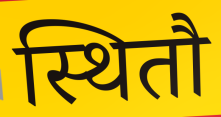
स्थितौ